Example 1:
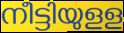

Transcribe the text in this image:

നീട്ടിയുളള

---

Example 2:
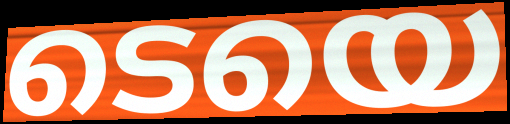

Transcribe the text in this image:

ടെയെ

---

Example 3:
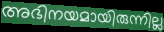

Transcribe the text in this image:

അഭിനയമായിരുന്നില്ല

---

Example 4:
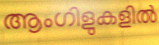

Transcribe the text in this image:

ആംഗിളുകളിൽ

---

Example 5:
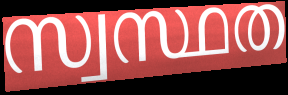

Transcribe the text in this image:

സ്വസ്ഥത